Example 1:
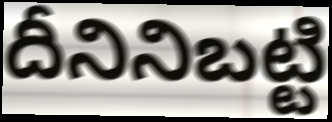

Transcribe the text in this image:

దీనినిబట్టి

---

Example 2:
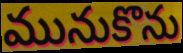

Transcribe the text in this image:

మునుకొను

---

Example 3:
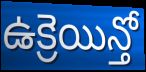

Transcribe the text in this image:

ఉక్రెయిన్తో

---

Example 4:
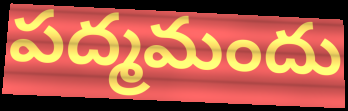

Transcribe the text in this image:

పద్మమందు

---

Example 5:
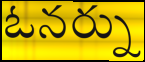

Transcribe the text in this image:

ఓనర్ను